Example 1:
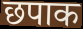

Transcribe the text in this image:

छपाक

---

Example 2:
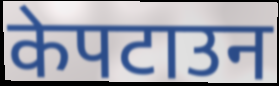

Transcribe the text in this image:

केपटाउन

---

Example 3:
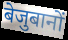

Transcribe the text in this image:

बेजुबानों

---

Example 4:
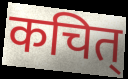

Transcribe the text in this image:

कचित्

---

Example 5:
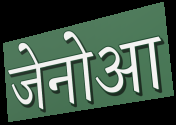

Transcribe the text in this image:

जेनोआ